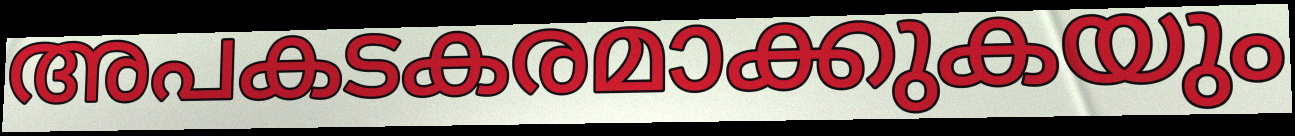
അപകടകരമാക്കുകയും